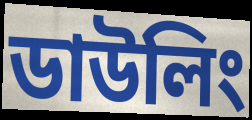
ডাউলিং